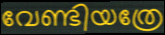
വേണ്ടിയത്രേ